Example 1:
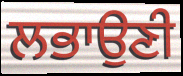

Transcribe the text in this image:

ਲਭਾਉਣੀ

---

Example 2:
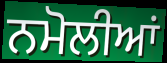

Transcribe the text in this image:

ਨਮੋਲੀਆਂ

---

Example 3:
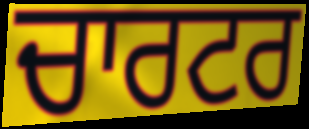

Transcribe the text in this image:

ਚਾਰਟਰ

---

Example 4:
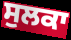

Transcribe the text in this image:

ਸੁਲਕਾ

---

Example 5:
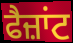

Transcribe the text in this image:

ਫੈਜ਼ਾਂਟ